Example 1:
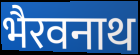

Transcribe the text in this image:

भैरवनाथ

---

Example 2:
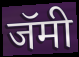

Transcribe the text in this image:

जॅमी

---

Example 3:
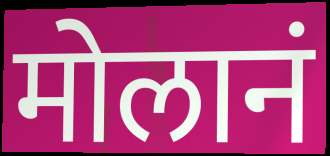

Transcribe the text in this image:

मोलानं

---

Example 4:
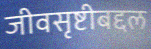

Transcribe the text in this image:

जीवसृष्टीबद्दल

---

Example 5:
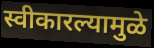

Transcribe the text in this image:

स्वीकारल्यामुळे